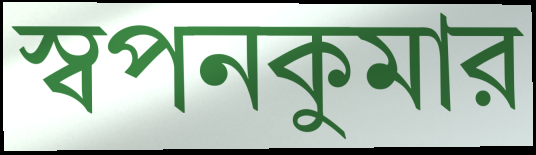
স্বপনকুমার